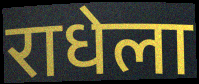
राधेला